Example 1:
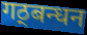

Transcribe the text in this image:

गठ्बन्धन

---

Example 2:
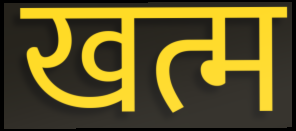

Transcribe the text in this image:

खत्म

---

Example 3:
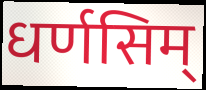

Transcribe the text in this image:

धर्णसिम्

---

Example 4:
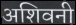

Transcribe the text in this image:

अशिवनी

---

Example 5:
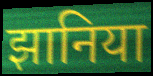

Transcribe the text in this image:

झानिया